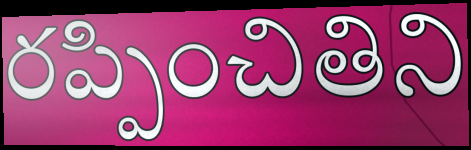
రప్పించితిని